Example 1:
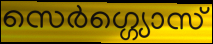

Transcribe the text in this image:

സെർഗ്ഗ്യൊസ്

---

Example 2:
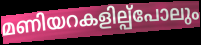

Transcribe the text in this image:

മണിയറകളില്പ്പോലും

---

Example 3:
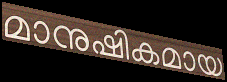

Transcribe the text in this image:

മാനുഷികമായ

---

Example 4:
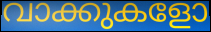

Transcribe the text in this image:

വാക്കുകളോ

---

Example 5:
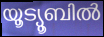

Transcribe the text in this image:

യൂട്യൂബിൽ